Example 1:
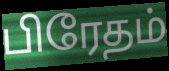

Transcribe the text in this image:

பிரேதம்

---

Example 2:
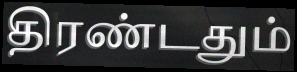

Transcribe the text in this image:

திரண்டதும்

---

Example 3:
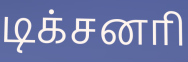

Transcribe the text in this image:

டிக்சனரி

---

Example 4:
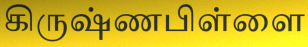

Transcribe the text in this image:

கிருஷ்ணபிள்ளை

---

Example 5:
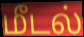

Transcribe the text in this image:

மீடல்